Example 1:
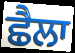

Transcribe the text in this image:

ਛੈਲਾ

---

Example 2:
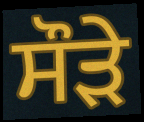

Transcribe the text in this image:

ਸੌੜੇ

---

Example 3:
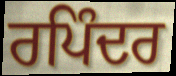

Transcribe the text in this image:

ਰਪਿੰਦਰ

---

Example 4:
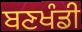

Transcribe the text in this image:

ਬਣਖੰਡੀ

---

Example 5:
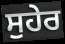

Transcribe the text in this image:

ਸੁਹੇਰ